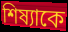
শিষ্যাকে